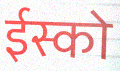
ईस्को